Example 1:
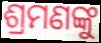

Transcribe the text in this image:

ଶ୍ରମଣଙ୍କୁ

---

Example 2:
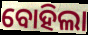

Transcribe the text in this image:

ବୋହିଲା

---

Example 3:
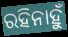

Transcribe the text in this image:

ରହିନାହୁଁ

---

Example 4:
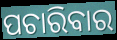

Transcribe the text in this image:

ପଚାରିବାର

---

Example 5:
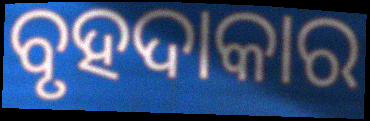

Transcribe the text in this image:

ବୃହଦାକାର